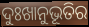
ଦୁଃଖାନୁଭୂତିର